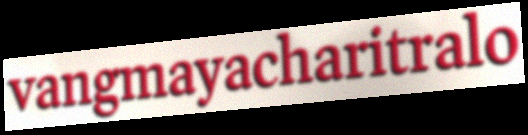
vangmayacharitralo